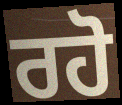
ਰਹੋ